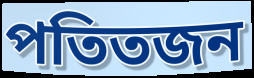
পতিতজন